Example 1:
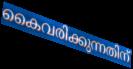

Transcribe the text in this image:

കൈവരിക്കുന്നതിന്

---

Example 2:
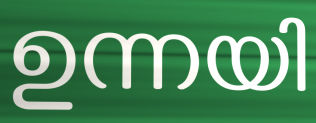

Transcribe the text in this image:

ഉന്നയി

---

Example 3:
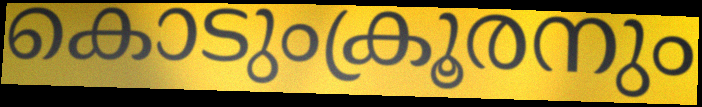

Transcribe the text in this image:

കൊടുംക്രൂരനും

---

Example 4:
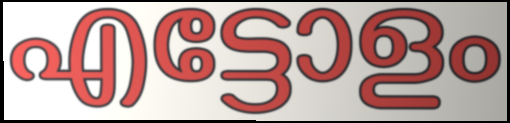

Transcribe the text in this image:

എട്ടോളം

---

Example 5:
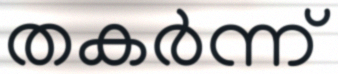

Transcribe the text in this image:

തകർന്ന്